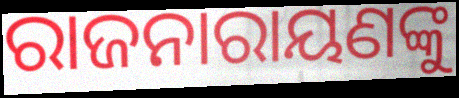
ରାଜନାରାୟଣଙ୍କୁ